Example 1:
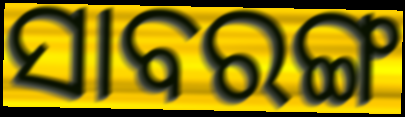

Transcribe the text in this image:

ସାବରଙ୍ଗ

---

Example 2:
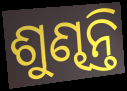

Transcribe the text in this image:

ଶୁଣ୍ଢନ୍ତି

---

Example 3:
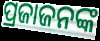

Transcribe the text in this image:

ପ୍ରଜାଜନଙ୍କ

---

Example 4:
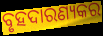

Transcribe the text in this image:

ବୃହଦାରଣ୍ୟକର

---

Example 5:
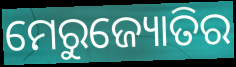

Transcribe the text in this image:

ମେରୁଜ୍ୟୋତିର